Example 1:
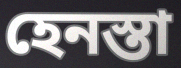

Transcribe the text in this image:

হেনস্তা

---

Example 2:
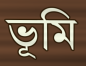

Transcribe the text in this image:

ভূমি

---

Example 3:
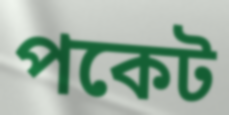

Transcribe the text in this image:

পকেট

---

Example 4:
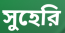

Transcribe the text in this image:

সুহেরি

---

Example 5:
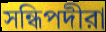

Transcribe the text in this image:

সন্ধিপদীরা